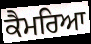
ਕੈਮਰਿਆ